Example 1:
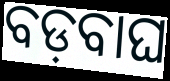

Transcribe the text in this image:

ବଡ଼ବାଘ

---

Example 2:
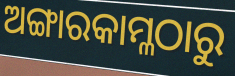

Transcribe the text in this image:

ଅଙ୍ଗାରକାମ୍ଳଠାରୁ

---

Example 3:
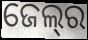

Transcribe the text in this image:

ଜେଲ୍‍ର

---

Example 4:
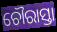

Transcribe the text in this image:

ଚୌରାସ୍ତା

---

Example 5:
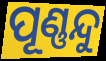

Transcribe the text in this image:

ପୂଣ୍ଣନ୍ଦୁ